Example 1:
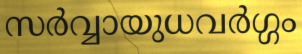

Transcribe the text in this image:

സർവ്വായുധവർഗ്ഗം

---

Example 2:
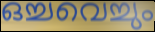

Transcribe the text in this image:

ഒച്ചവെച്ചും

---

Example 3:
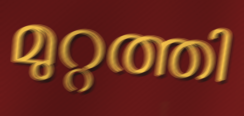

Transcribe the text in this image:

മുറ്റത്തി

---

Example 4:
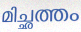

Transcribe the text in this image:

മിച്ഛത്തം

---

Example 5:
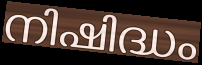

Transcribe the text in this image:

നിഷിദ്ധം